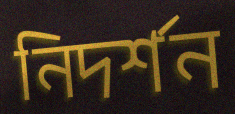
নিদৰ্শন